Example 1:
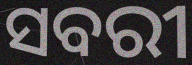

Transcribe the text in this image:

ସବରୀ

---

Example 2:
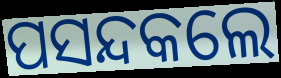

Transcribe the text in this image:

ପସନ୍ଦକଲେ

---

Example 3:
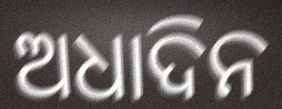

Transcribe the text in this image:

ଅଧାଦିନ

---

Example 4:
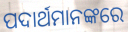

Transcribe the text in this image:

ପଦାର୍ଥମାନଙ୍କରେ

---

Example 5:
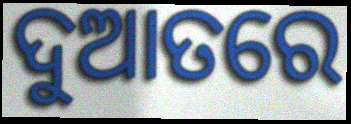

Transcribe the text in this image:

ଦୁଆତରେ